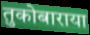
तुकोबाराया